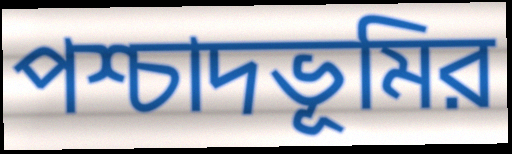
পশ্চাদভূমির